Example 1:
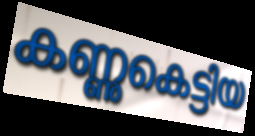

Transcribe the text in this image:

കണ്ണുകെട്ടിയ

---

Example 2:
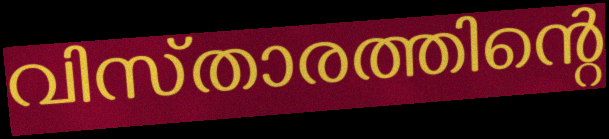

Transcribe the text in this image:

വിസ്‌താരത്തിന്റെ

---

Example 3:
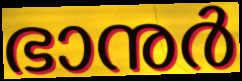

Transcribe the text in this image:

ഭാനുർ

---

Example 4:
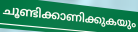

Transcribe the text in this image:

ചൂണ്ടിക്കാണിക്കുകയും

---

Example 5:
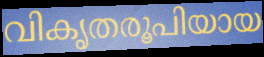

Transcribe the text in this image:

വികൃതരൂപിയായ